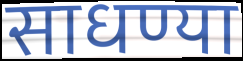
साधण्या